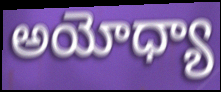
అయోధ్యా